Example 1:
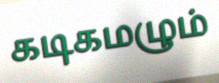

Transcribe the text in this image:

கடிகமழும்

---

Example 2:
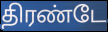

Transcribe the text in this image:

திரண்டே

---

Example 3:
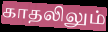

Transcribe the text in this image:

காதலிலும்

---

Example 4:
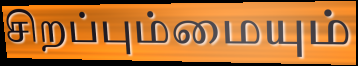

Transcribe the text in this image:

சிறப்பும்மையும்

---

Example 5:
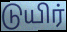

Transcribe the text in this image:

டுயிர்